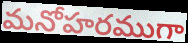
మనోహరముగా